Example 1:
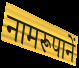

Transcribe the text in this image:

नामरूपानें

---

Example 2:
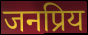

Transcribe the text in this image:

जनप्रिय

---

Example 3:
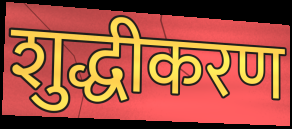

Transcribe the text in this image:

शुद्धीकरण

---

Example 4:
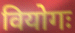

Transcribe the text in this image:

वियोगः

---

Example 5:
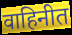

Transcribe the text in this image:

वाहिनीत